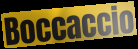
Boccaccio